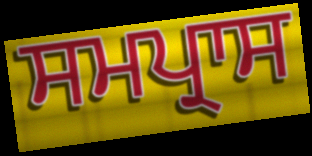
ਸਮਪ੍ਰਾਸ